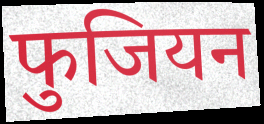
फुजियन